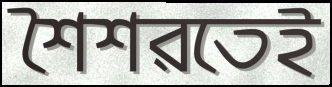
শৈশৱতেই